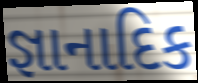
જ્ઞાનાદિક